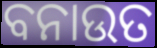
ବନାଉତ